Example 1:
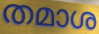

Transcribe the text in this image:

തമാശ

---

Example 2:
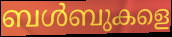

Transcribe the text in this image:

ബൾബുകളെ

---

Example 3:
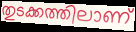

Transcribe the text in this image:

തുടക്കത്തിലാണ്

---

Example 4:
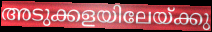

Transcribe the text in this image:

അടുക്കളയിലേയ്ക്കു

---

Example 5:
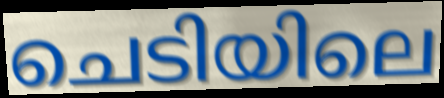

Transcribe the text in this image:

ചെടിയിലെ